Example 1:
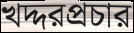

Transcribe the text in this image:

খদ্দরপ্রচার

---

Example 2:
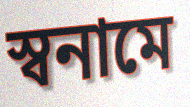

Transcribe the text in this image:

স্বনামে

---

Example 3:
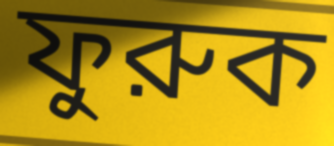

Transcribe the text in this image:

ফুরুক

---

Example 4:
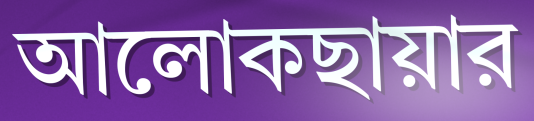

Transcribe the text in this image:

আলোকছায়ার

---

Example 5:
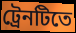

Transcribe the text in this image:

ট্রেনটিতে